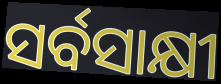
ସର୍ବସାକ୍ଷୀ